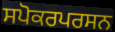
ਸਪੋਕਰਪਰਸਨ